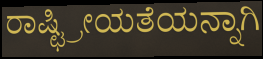
ರಾಷ್ಟ್ರೀಯತೆಯನ್ನಾಗಿ